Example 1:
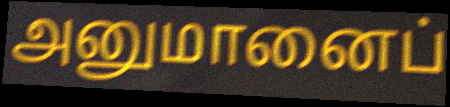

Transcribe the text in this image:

அனுமானைப்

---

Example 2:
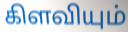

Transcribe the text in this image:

கிளவியும்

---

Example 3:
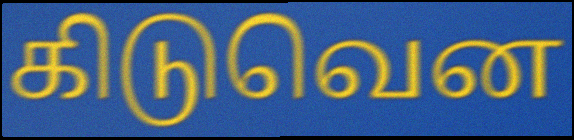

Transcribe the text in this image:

கிடுவென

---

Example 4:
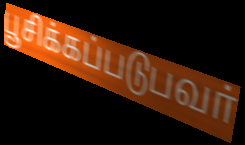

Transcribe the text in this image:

பூசிக்கப்படுபவர்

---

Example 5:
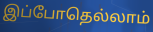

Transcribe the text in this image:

இப்போதெல்லாம்